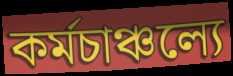
কর্মচাঞ্চল্যে